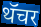
थॅचर